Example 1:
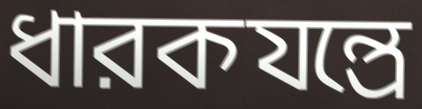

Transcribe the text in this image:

ধারকযন্ত্রে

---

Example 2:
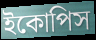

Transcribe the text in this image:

ইকোপিস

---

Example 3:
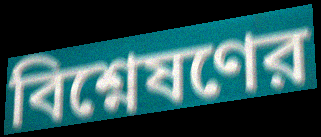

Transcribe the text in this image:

বিশ্নেষণের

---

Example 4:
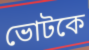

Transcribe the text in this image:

ভোটকে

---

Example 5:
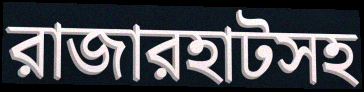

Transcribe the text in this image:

রাজারহাটসহ